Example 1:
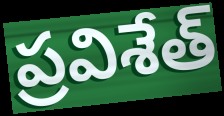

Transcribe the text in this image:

ప్రవిశేత్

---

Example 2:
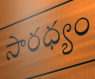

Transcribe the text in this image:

సారధ్యం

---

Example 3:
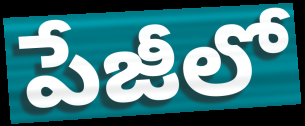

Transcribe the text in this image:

పేజీలో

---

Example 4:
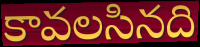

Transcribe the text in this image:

కావలసినది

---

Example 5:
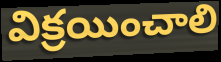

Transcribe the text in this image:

విక్రయించాలి